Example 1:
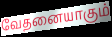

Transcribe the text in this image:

வேதனையாகும்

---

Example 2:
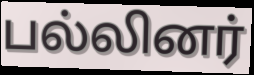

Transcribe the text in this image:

பல்லினர்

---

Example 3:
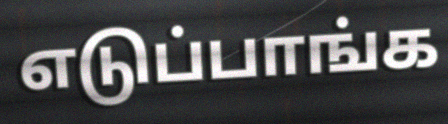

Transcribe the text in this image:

எடுப்பாங்க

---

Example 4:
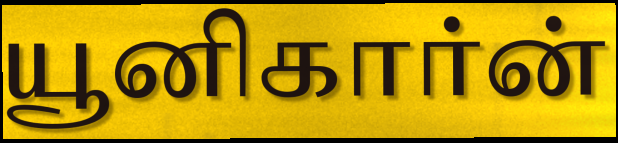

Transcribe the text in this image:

யூனிகார்ன்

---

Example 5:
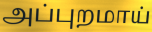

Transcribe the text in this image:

அப்புறமாய்